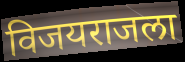
विजयराजला